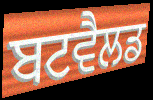
ਬਟਵੈਲਡ